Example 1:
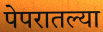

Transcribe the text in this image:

पेपरातल्या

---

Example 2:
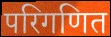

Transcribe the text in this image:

परिगणित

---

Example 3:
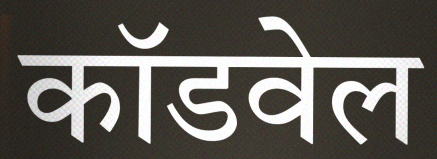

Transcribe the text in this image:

कॉडवेल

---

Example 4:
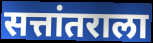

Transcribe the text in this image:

सत्तांतराला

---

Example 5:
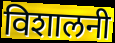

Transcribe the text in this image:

विशालनी